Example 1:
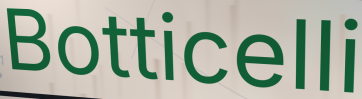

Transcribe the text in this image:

Botticelli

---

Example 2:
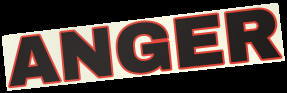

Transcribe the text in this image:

ANGER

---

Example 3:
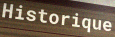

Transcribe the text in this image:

Historique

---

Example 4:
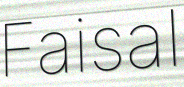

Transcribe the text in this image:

Faisal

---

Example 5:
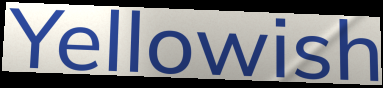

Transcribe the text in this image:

Yellowish